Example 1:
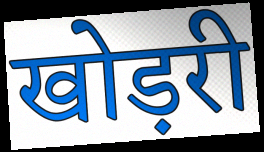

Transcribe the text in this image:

खोड़री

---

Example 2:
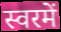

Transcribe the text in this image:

स्वरमें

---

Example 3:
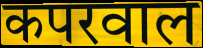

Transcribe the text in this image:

कपरवाल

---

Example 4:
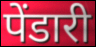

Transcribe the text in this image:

पेंडारी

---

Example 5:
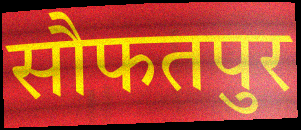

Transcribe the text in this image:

सौफतपुर